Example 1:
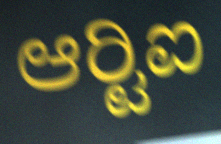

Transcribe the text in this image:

ಆರ್‍ಟಿಐ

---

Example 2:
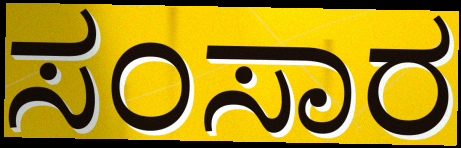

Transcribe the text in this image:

ಸಂಸಾರ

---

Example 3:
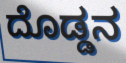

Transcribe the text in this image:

ದೊಡ್ಡನ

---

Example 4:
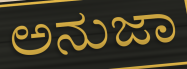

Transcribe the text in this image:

ಅನುಜಾ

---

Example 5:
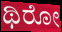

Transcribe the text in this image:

ಥಿರೋ